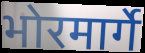
भोरमार्गे